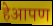
हेआपण